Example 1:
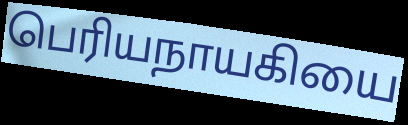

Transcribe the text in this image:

பெரியநாயகியை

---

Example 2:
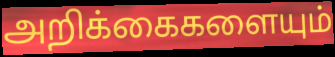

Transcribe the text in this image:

அறிக்கைகளையும்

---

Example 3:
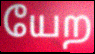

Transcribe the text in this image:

யேற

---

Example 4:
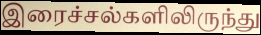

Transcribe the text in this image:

இரைச்சல்களிலிருந்து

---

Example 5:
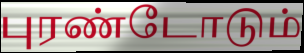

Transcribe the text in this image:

புரண்டோடும்